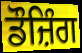
ਡੌਜ਼ਿੰਗ